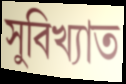
সুবিখ্যাত